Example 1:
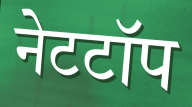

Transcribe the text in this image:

नेटटॉप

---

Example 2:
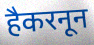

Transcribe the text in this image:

हैकरनून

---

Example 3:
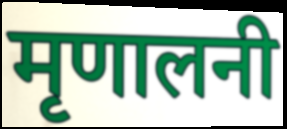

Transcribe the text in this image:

मृणालनी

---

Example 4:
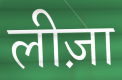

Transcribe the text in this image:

लीज़ा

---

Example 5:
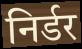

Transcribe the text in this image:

निर्डर